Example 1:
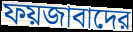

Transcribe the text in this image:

ফয়জাবাদের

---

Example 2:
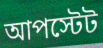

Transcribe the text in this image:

আপস্টেট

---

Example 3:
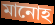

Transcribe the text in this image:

মানোহ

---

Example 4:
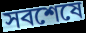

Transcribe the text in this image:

সবশেষে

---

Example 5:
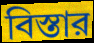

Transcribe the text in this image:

বিস্তার